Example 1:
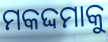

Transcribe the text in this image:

ମକଦ୍ଦମାକୁ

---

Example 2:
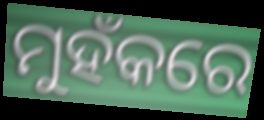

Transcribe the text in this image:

ମୁହଁକରେ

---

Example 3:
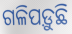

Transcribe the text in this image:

ଗଳିପଡ଼ୁଛି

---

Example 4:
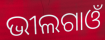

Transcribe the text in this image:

ଭୀଲଗାଓଁ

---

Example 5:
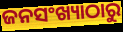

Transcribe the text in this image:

ଜନସଂଖ୍ୟାଠାରୁ